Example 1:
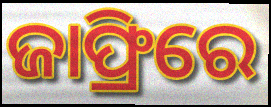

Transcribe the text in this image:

ଜାଫ୍ରିରେ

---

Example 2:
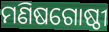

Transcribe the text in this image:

ମଣିଷଗୋଷ୍ଠୀ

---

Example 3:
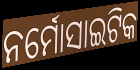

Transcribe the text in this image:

ନର୍ମୋସାଇଟିକ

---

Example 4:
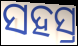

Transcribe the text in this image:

ସହସ୍ର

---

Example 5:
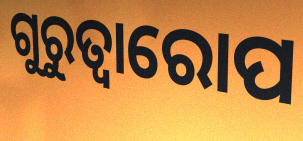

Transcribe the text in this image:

ଗୁରୁତ୍ୱାରୋପ